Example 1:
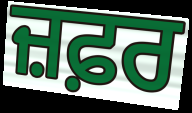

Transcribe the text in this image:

ਜ਼ਫ਼ਰ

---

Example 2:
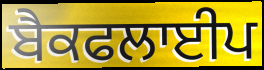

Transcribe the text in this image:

ਬੈਕਫਲਾਈਪ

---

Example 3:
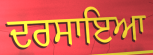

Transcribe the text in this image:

ਦਰਸਾਇਆ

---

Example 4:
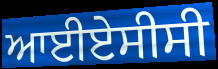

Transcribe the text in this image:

ਆਈਏਸੀਸੀ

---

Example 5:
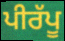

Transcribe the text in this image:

ਪੀਰੱਪੂ